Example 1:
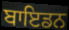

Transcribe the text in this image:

ਬਾਇਡਨ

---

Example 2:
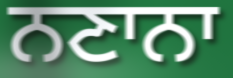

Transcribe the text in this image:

ਨਣਾਨਾ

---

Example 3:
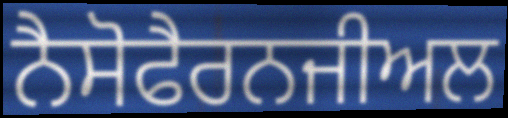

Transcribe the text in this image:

ਨੈਸੋਫੈਰਨਜੀਅਲ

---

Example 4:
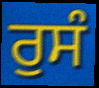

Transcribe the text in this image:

ਰੁਸੰ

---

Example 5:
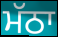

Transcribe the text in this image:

ਮੱਠਾ